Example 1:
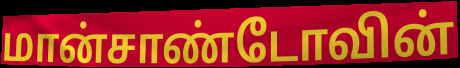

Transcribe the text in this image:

மான்சாண்டோவின்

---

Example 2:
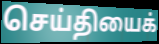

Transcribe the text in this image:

செய்தியைக்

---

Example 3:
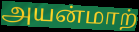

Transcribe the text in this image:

அயன்மாற்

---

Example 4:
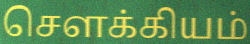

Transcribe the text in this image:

சௌக்கியம்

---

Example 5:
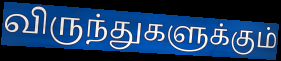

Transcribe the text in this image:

விருந்துகளுக்கும்